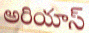
అరియాస్